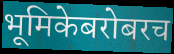
भूमिकेबरोबरच